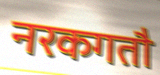
नरकगतौ